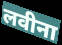
लवीना